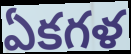
ఏకగళ